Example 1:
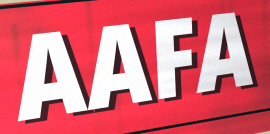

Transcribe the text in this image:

AAFA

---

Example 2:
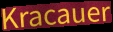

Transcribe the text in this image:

Kracauer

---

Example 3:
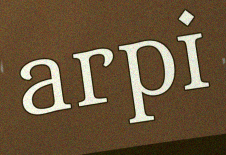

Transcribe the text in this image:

arpi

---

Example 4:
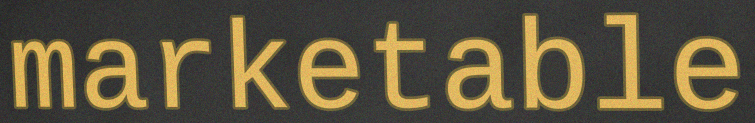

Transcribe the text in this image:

marketable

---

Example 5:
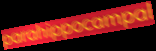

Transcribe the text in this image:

parahippocampal